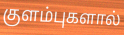
குளம்புகளால்